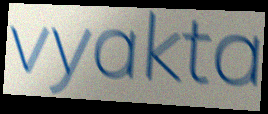
vyakta